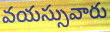
వయస్సువారు